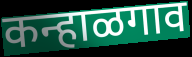
कन्हाळगाव